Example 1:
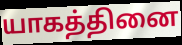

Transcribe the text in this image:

யாகத்தினை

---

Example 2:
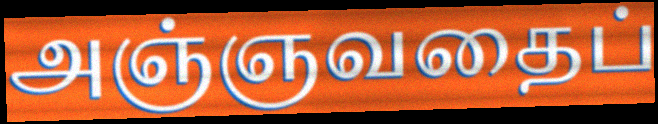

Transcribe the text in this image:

அஞ்ஞவதைப்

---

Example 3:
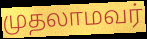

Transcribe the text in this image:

முதலாமவர்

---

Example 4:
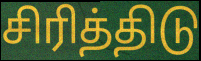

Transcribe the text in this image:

சிரித்திடு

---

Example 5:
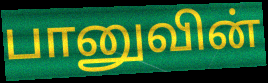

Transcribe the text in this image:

பானுவின்